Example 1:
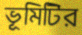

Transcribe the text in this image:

ভূমিটির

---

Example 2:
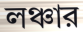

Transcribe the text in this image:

লঞ্চার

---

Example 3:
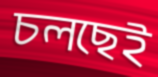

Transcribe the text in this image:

চলছেই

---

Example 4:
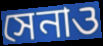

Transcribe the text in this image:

সেনাও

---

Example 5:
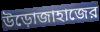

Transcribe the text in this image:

উড়োজাহাজের